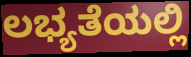
ಲಭ್ಯತೆಯಲ್ಲಿ